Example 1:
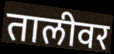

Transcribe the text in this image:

तालीवर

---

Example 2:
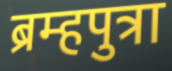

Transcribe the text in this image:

ब्रम्हपुत्रा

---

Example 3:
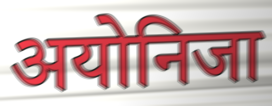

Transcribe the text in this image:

अयोनिजा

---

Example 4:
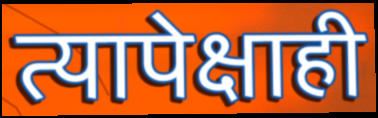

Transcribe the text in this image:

त्यापेक्षाही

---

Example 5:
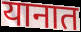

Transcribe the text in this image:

यानात